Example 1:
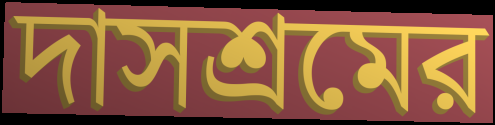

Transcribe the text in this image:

দাসশ্রমের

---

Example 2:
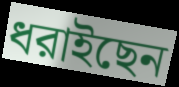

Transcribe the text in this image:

ধরাইছেন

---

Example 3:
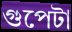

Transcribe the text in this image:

গুপেটা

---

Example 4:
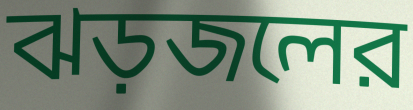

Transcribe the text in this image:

ঝড়জলের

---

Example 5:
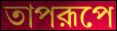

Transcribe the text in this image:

তাপরূপে